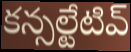
కన్సల్టేటివ్